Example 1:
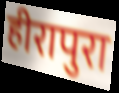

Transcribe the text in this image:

हीरापुरा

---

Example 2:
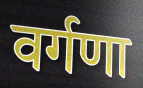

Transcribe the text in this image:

वर्गणा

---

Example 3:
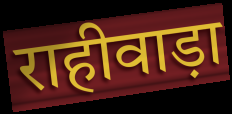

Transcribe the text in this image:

राहीवाड़ा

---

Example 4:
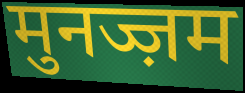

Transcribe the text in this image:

मुनज्ज़म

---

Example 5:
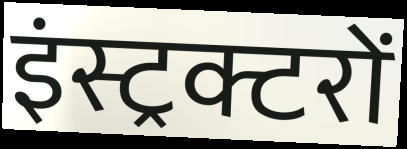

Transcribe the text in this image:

इंस्ट्रक्टरों